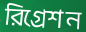
রিগ্রেশন